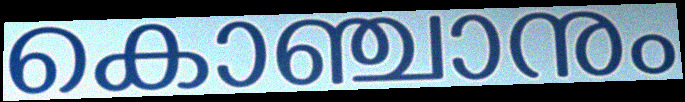
കൊഞ്ചാനും